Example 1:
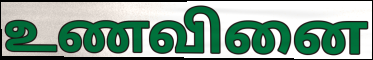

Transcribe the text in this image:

உணவினை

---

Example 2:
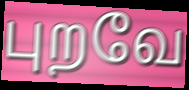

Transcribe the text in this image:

புறவே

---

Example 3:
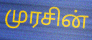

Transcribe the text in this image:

முரசின்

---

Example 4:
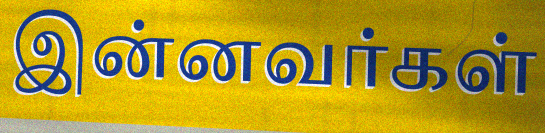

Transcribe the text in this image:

இன்னவர்கள்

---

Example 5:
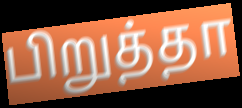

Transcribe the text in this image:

பிறுத்தா